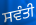
ਸਵੰਤੀ